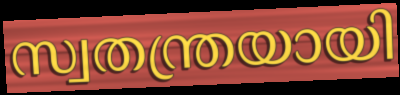
സ്വതന്ത്രയായി